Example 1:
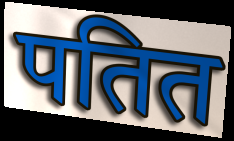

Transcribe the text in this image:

पतित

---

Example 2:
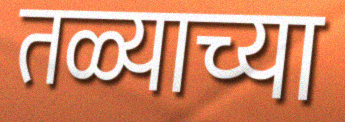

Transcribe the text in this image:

तळ्याच्या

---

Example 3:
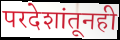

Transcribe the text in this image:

परदेशांतूनही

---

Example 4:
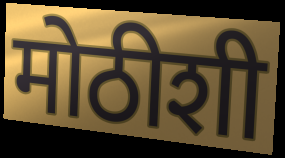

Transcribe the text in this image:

मोठीशी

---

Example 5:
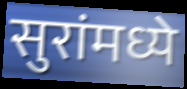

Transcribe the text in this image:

सुरांमध्ये